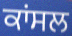
ਕਾਂਸਲ